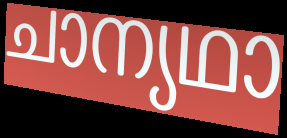
ചാന്യഥാ